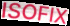
ISOFIX